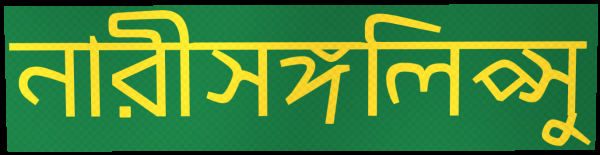
নারীসঙ্গলিপ্সু